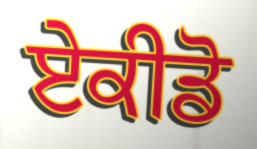
ਏਕੀਡੋ